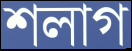
শলাগ